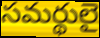
సమర్థులై